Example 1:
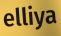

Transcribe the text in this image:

elliya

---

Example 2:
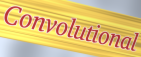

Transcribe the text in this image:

Convolutional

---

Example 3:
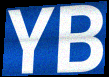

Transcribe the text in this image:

YB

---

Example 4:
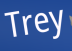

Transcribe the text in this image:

Trey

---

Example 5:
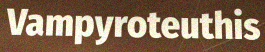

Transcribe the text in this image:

Vampyroteuthis